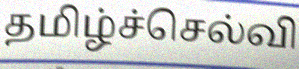
தமிழ்ச்செல்வி